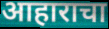
आहाराचा